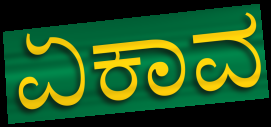
ಏಕಾವ